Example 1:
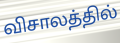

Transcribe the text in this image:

விசாலத்தில்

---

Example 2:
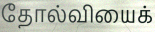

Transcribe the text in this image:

தோல்வியைக்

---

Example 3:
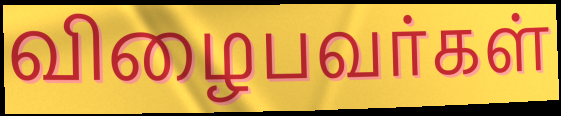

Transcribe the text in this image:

விழைபவர்கள்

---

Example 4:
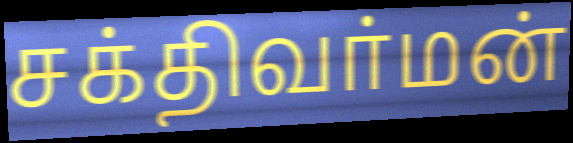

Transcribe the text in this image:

சக்திவர்மன்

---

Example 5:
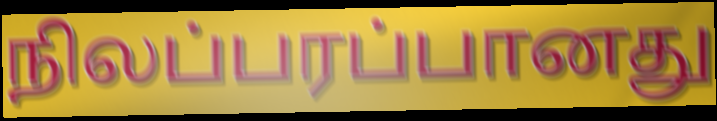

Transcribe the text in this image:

நிலப்பரப்பானது